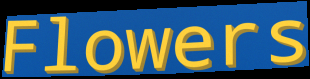
Flowers